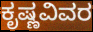
ಕೃಷ್ಣವಿವರ